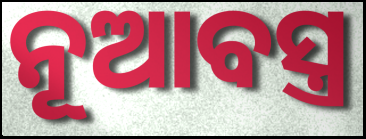
ନୂଆବସ୍ତ୍ର